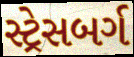
સ્ટ્રેસબર્ગ